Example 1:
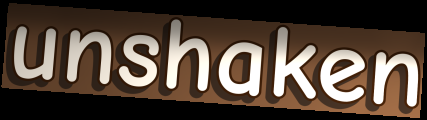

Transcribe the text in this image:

unshaken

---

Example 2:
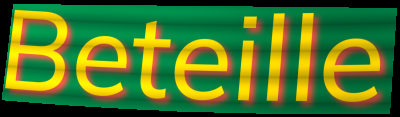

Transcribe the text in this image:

Beteille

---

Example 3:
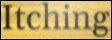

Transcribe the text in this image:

Itching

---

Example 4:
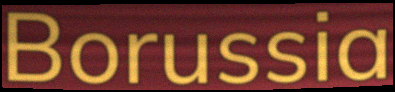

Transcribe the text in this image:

Borussia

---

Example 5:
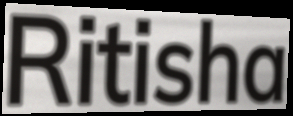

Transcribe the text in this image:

Ritisha